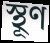
স্থূণ